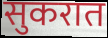
सुकरात